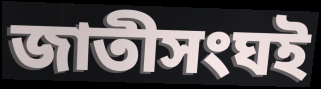
জাতীসংঘই